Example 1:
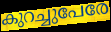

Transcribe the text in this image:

കുറച്ചുപേരേ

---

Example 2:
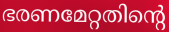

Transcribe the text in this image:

ഭരണമേറ്റതിന്റെ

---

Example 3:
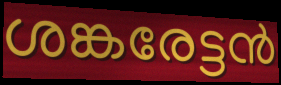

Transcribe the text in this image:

ശങ്കരേട്ടൻ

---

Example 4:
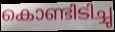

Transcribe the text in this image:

കൊണ്ടിടിച്ചു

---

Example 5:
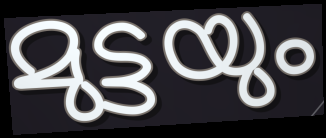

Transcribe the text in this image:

മുട്ടയും